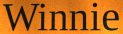
Winnie